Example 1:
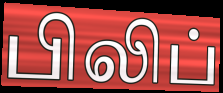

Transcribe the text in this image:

பிலிப்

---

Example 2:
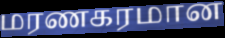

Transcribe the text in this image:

மரணகரமான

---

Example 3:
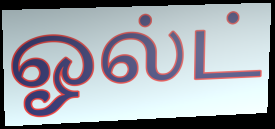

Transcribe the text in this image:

ஓல்ட்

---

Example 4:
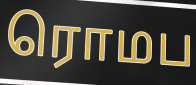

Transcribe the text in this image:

ரொமப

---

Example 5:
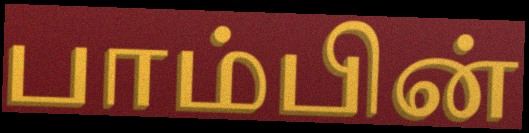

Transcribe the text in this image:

பாம்பின்